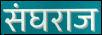
संघराज